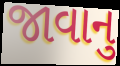
જાવાનુ